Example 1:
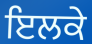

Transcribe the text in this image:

ਇਲਕੇ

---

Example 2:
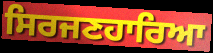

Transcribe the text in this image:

ਸਿਰਜਣਹਾਰਿਆ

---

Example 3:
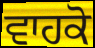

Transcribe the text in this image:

ਵਾਹਕੋ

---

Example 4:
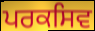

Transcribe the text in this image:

ਪਰਕਸਿਵ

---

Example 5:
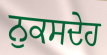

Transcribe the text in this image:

ਨੁਕਸਦੇਹ